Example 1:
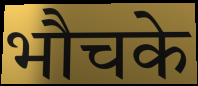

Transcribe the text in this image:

भौचके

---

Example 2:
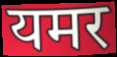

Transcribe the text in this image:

यमर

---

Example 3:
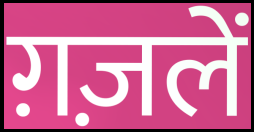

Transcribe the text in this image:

ग़ज़लें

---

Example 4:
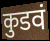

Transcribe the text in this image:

कुडवं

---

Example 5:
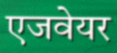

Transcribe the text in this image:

एजवेयर